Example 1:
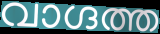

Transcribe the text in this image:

വാഗ്ദത്ത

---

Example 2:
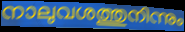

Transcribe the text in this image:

നാലുവശത്തുനിന്നും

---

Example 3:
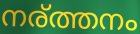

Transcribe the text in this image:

നര്ത്തനം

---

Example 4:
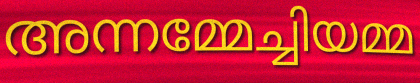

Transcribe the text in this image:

അന്നമ്മേച്ചിയമ്മ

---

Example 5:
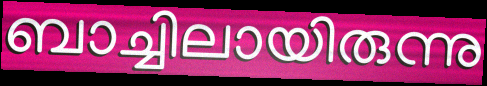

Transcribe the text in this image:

ബാച്ചിലായിരുന്നു